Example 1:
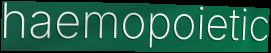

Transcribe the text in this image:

haemopoietic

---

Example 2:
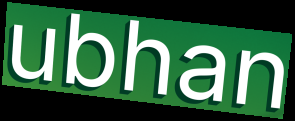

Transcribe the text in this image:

ubhan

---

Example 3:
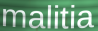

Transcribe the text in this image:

malitia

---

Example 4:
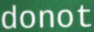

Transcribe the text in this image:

donot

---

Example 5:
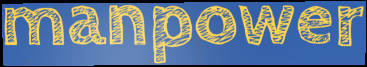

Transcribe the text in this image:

manpower